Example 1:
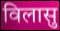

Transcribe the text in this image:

विलासु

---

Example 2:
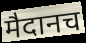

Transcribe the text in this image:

मैदानच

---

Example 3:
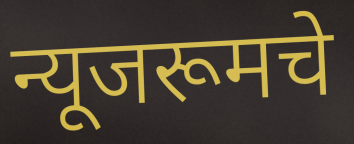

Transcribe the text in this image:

न्यूजरूमचे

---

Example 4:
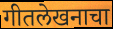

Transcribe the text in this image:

गीतलेखनाचा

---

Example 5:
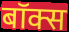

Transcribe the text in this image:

बॉक्स